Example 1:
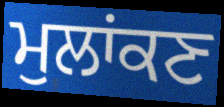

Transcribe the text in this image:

ਮੁਲਾਂਕਣ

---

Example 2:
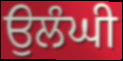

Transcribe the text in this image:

ਉਲੰਘੀ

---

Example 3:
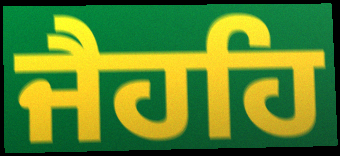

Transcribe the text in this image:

ਜੈਹਹਿ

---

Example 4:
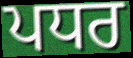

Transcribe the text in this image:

ਪਧਰ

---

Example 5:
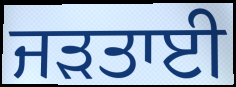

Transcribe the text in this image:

ਜੜਤਾਈ